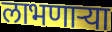
लाभणार्‍या